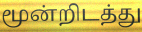
மூன்றிடத்து